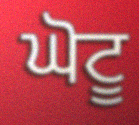
ਘੋਟੂ